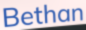
Bethan